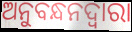
ଅନୁବନ୍ଧନଦ୍ୱାରା